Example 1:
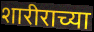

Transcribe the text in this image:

शारीराच्या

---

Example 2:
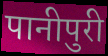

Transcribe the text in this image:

पानीपुरी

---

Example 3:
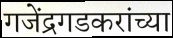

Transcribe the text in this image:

गजेंद्रगडकरांच्या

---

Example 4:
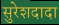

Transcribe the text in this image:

सुरेशदादा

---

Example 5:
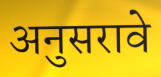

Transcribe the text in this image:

अनुसरावे